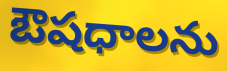
ఔషధాలను